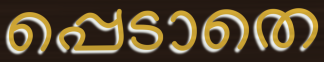
പ്പെടാതെ